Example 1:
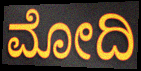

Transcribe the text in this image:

ಮೋದಿ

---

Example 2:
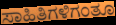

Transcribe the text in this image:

ಸಾಹಿತಿಗಳಿಗಂತೂ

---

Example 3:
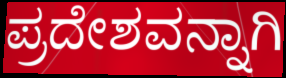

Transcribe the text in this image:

ಪ್ರದೇಶವನ್ನಾಗಿ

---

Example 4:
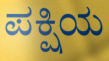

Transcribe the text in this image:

ಪಕ್ಷಿಯ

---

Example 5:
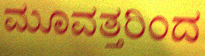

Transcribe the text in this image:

ಮೂವತ್ತರಿಂದ